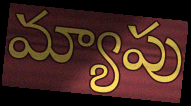
మ్యాపు